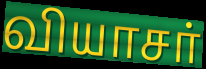
வியாசர்